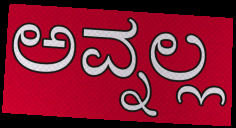
ಅವ್ನಲ್ಲ